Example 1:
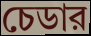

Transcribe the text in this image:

চেডার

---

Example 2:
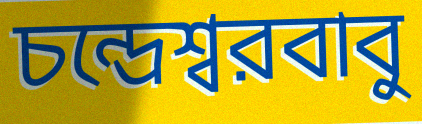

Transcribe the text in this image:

চন্দ্রেশ্বরবাবু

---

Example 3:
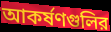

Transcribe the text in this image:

আকর্ষণগুলির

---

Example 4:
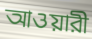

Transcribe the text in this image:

আওয়ারী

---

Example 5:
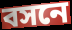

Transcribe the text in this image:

বসনে